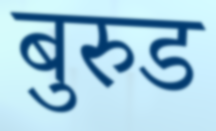
बुरुड